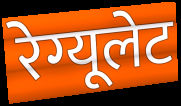
रेग्यूलेट